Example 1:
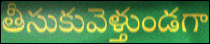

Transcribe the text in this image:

తీసుకువెళ్తుండగా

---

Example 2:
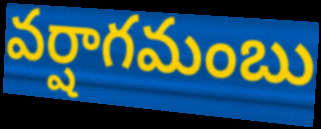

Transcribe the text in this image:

వర్షాగమంబు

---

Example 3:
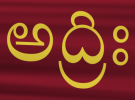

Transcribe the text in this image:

అద్రిః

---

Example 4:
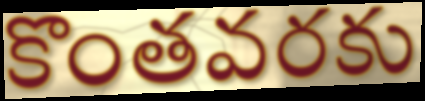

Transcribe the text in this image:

కొంతవరకు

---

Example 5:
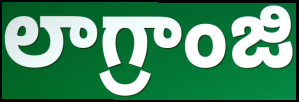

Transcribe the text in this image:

లాగ్రాంజి